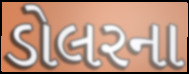
ડોલરના